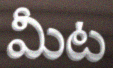
మీట